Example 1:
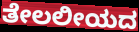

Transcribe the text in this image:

ತೇಲಲೀಯದ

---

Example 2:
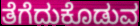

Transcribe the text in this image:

ತೆಗೆದುಕೊಡುವ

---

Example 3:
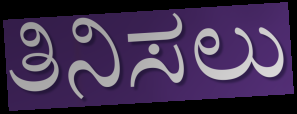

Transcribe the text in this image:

ತಿನಿಸಲು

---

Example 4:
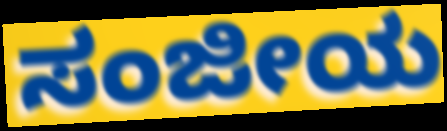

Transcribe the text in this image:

ಸಂಜೀಯ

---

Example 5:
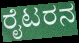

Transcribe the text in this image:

ರೈಟರನ